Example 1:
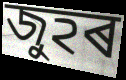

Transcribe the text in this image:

জুহৰ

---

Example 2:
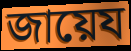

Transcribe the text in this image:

জায়েয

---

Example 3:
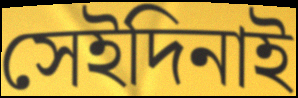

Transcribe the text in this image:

সেইদিনাই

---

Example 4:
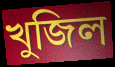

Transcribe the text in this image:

খুজিল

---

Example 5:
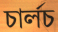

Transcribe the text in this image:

চাৰ্লচ